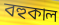
বহুকাল